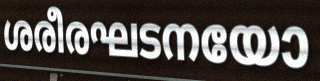
ശരീരഘടനയോ